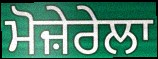
ਮੋਜ਼ੇਰੇਲਾ